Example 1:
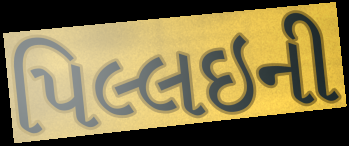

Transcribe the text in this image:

પિલ્લઇની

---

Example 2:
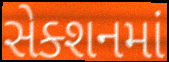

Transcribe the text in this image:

સેક્શનમાં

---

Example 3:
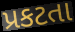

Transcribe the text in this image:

પ્રકટતા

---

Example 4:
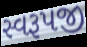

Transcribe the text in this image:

સ્વરૂપજી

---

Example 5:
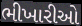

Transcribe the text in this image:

ભીખારીઓ